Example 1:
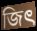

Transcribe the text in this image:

জিৎ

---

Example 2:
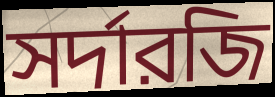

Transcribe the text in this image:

সর্দারজি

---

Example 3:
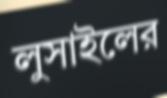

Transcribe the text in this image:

লুসাইলের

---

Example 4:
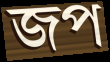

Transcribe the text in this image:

জপ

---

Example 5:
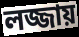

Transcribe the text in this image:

লজ্জায়